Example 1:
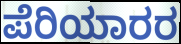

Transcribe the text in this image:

ಪೆರಿಯಾರರ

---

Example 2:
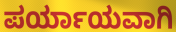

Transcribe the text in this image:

ಪರ್ಯಾಯವಾಗಿ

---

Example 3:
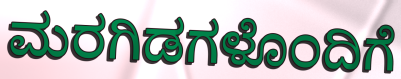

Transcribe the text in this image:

ಮರಗಿಡಗಳೊಂದಿಗೆ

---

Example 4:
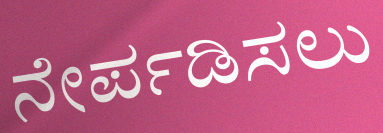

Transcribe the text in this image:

ನೇರ್ಪಡಿಸಲು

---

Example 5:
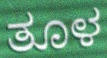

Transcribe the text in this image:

ತೂಳ